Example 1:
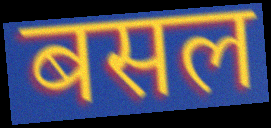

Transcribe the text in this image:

बसल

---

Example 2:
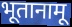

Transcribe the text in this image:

भूतानामू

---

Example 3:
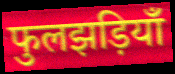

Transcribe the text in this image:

फुलझड़ियाँ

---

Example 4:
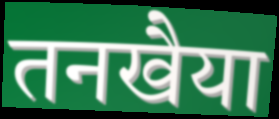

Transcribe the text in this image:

तनखैया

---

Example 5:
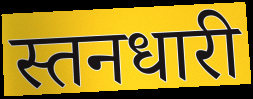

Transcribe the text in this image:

स्तनधारी